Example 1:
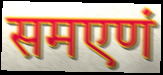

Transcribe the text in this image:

समएणं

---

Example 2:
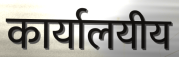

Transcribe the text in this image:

कार्यालयीय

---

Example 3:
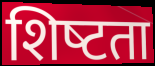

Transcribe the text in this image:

शिष्‍टता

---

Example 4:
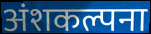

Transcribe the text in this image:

अंशकल्पना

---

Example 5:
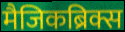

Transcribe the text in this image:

मैजिकब्रिक्स